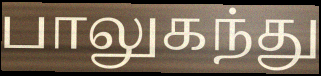
பாலுகந்து